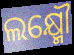
ଲକ୍ଷ୍ମୌ